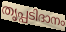
തൃപ്പടിദാനം